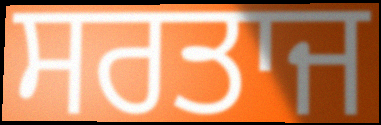
ਸਰਤਾਜ